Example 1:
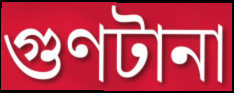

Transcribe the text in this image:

গুণটানা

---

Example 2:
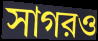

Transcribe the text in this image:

সাগরও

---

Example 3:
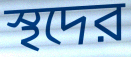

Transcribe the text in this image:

স্থদের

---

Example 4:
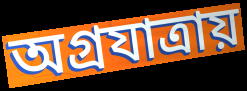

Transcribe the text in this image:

অগ্রযাত্রায়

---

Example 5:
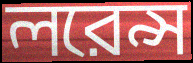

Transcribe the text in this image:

লরেন্স